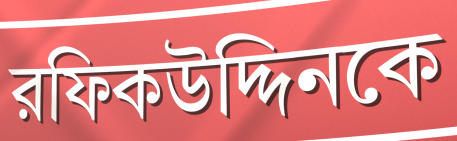
রফিকউদ্দিনকে